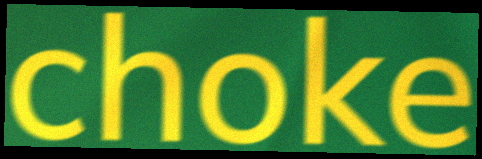
choke